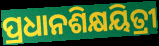
ପ୍ରଧାନଶିକ୍ଷୟିତ୍ରୀ